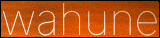
wahune